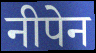
नीपेन